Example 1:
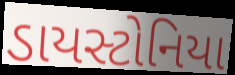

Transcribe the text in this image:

ડાયસ્ટોનિયા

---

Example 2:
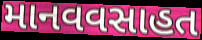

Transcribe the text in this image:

માનવવસાહત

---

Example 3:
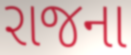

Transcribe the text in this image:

રાજના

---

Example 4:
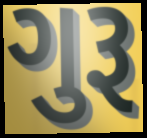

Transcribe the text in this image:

ગુરૂ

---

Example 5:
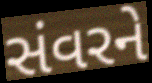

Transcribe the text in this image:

સંવરને